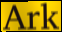
Ark